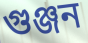
গুঞ্জন